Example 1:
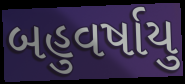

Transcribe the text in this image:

બહુવર્ષાયુ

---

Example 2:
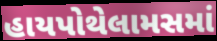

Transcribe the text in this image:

હાયપોથેલામસમાં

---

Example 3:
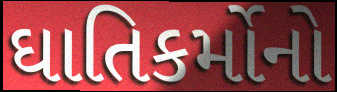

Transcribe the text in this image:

ઘાતિકર્મોનો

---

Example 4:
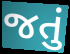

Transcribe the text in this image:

જતું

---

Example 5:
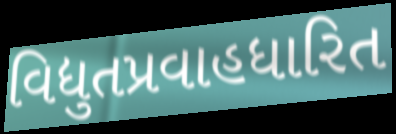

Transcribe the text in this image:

વિદ્યુતપ્રવાહધારિત